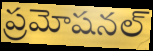
ప్రమోషనల్